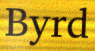
Byrd